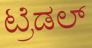
ಟ್ರೆಡಲ್